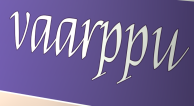
vaarppu